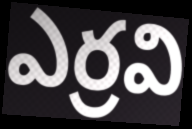
ఎర్రవి